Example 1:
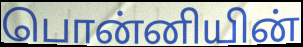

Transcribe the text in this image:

பொன்னியின்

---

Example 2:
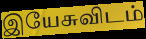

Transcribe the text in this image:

இயேசுவிடம்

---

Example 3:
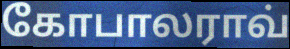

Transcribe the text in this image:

கோபாலராவ்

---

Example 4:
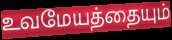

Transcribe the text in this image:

உவமேயத்தையும்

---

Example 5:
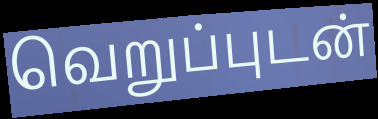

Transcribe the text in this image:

வெறுப்புடன்